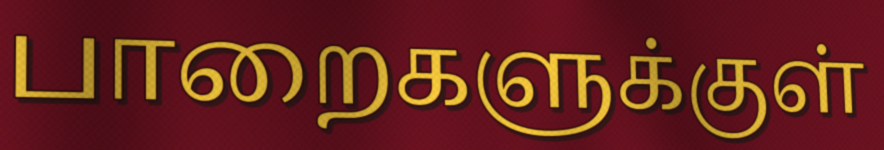
பாறைகளுக்குள்